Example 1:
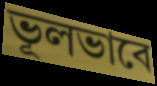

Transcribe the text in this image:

ভূলভাবে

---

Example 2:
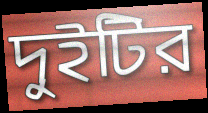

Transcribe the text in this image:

দুইটির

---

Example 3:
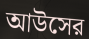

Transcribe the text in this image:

আউসের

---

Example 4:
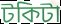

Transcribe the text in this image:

টকিটা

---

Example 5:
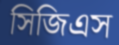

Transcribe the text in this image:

সিজিএস